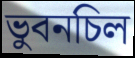
ভুবনচিল